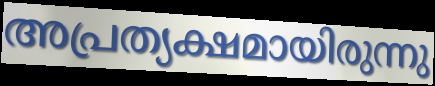
അപ്രത്യക്ഷമായിരുന്നു